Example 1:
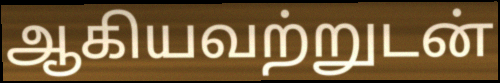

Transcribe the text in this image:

ஆகியவற்றுடன்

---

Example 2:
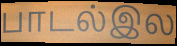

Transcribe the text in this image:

பாடல்இல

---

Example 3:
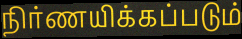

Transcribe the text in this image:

நிர்ணயிக்கப்படும்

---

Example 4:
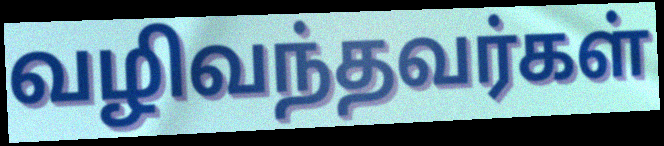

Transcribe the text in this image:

வழிவந்தவர்கள்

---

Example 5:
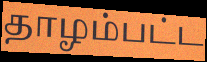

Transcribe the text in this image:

தாழம்பட்ட